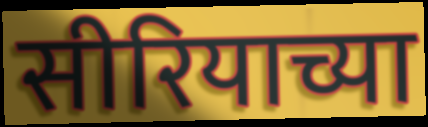
सीरियाच्या